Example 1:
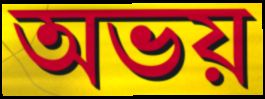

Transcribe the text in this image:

অভয়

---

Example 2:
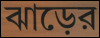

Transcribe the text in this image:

ঝাড়ের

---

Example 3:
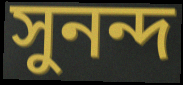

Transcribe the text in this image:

সুনন্দ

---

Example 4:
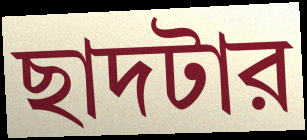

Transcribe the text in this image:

ছাদটার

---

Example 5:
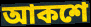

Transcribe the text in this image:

আকশে